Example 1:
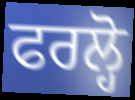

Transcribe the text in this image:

ਫਰਲ੍ਹੋ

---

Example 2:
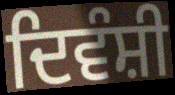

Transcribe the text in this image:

ਦਿਵੰਸ਼ੀ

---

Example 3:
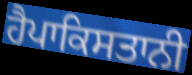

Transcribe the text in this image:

ਹੈਪਾਕਿਸਤਾਨੀ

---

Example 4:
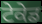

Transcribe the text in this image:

ਟੇਕੇਡ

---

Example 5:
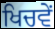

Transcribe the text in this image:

ਖਿਚਵੇਂ